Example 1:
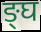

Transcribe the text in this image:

ङ्घ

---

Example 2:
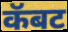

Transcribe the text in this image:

कॅबट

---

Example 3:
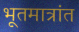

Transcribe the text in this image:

भूतमात्रांत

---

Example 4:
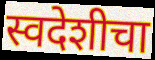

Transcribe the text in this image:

स्वदेशीचा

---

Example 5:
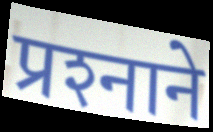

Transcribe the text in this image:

प्रश्नाने